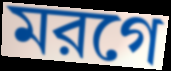
মরগে